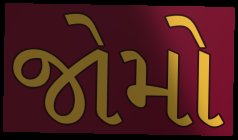
જોમો